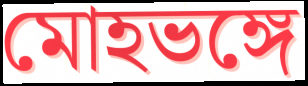
মোহভঙ্গে